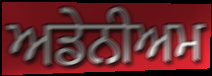
ਅਡੇਨੀਅਮ